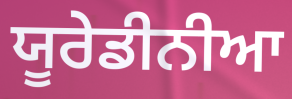
ਯੂਰੇਡੀਨੀਆ